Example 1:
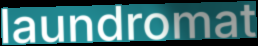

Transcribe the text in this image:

laundromat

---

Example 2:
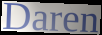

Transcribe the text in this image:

Daren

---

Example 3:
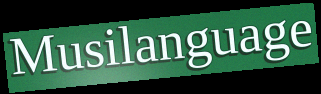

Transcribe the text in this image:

Musilanguage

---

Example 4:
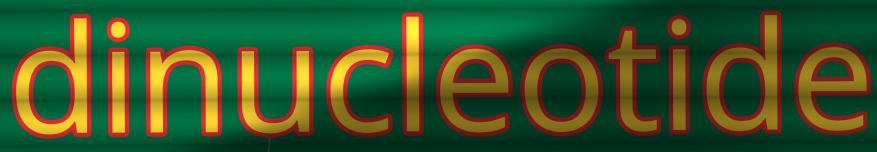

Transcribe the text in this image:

dinucleotide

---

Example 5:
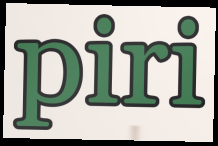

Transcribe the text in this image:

piri